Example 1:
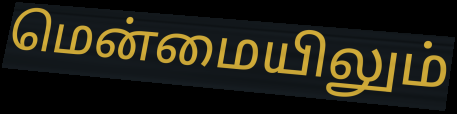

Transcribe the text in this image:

மென்மையிலும்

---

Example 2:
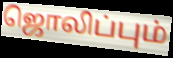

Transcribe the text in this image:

ஜொலிப்பும்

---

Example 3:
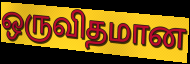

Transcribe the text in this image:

ஒருவிதமான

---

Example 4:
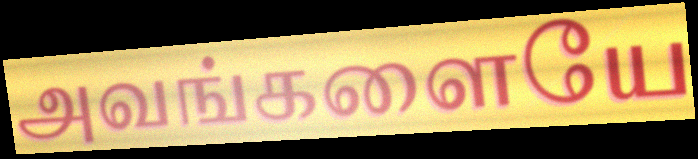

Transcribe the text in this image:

அவங்களையே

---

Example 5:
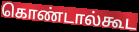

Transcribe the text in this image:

கொண்டால்கூட